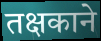
तक्षकाने